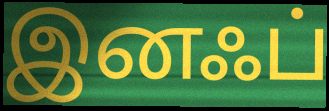
இனஃப்